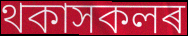
থকাসকলৰ